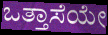
ಒತ್ತಾಸೆಯೇ